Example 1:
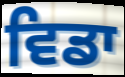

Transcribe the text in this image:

ਵਿਡਾ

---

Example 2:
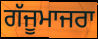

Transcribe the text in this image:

ਗੱਜੂਮਾਜਰਾ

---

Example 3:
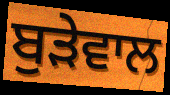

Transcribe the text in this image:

ਬੁੜੇਵਾਲ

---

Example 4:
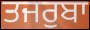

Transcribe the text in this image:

ਤਜਰੁਬਾ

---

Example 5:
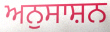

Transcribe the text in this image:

ਅਨੁਸਾਸ਼ਨ